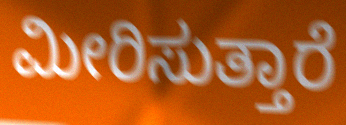
ಮೀರಿಸುತ್ತಾರೆ